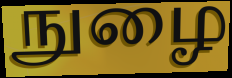
நுழை